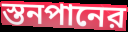
স্তনপানের